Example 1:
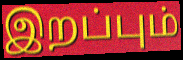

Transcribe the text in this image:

இறப்பும்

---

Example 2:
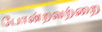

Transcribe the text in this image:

போன்றவற்றை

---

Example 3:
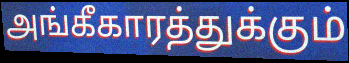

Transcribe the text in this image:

அங்கீகாரத்துக்கும்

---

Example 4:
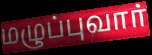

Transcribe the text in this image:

மழுப்புவார்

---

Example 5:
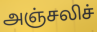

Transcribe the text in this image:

அஞ்சலிச்